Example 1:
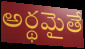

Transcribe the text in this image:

అర్థమైతే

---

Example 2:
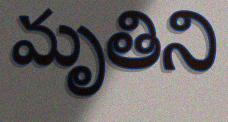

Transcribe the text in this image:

మృతిని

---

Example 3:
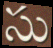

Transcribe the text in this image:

సు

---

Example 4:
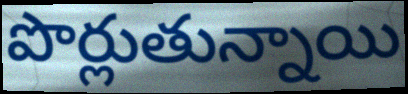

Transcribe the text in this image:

పొర్లుతున్నాయి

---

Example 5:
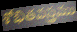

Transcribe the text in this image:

శోభితవస్త్రము